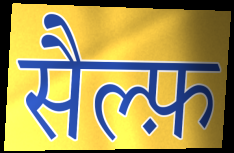
सैल्फ़